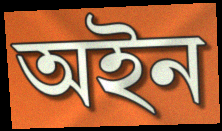
অইন